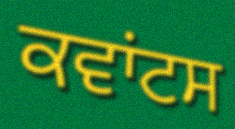
ਕਵਾਂਟਸ